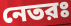
নেতরঃ